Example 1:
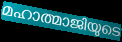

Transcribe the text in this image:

മഹാത്മാജിയുടെ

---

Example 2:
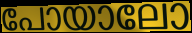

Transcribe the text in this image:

പോയാലോ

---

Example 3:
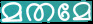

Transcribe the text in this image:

മതമേ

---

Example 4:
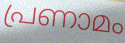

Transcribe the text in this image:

പ്രണാമം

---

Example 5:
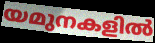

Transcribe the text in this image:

യമുനകളിൽ